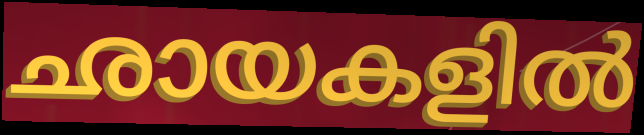
ഛായകളിൽ